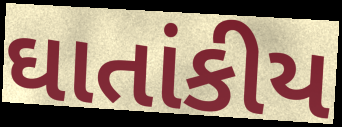
ઘાતાંકીય